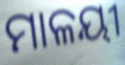
ମାଳୟୀ